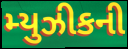
મ્યુઝીકની